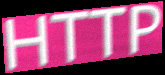
HTTP